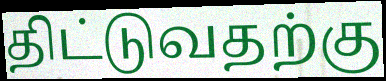
திட்டுவதற்கு